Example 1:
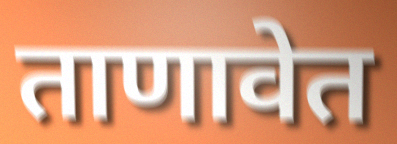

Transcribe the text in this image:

ताणावेत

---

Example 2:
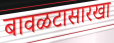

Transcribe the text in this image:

बावळटासारखा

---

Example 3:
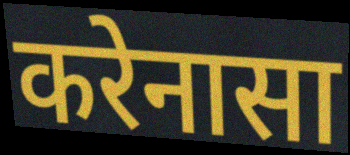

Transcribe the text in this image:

करेनासा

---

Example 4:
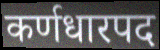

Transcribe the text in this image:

कर्णधारपद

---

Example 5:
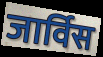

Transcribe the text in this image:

जार्विस